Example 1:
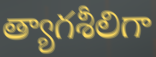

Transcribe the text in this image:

త్యాగశీలిగా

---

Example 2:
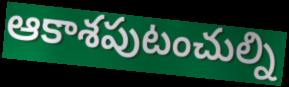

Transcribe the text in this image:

ఆకాశపుటంచుల్ని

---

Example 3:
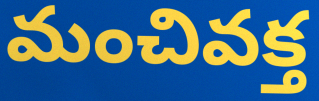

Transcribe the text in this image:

మంచివక్త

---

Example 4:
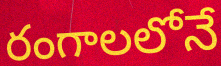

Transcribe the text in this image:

రంగాలలోనే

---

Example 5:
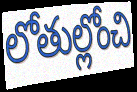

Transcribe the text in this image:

లోతుల్లోంచి